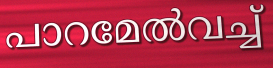
പാറമേൽവച്ച്